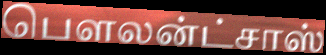
பௌலன்ட்சாஸ்